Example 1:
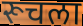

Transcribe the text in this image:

रूचला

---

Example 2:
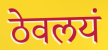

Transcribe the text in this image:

ठेवलयं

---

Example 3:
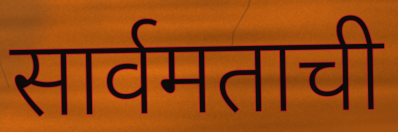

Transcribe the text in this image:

सार्वमताची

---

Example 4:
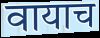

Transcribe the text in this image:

वायाच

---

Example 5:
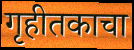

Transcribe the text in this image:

गृहीतकाचा